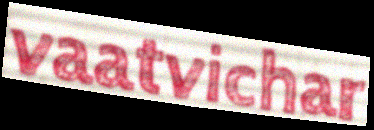
vaatvichar